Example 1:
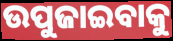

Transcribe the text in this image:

ଉପୁଜାଇବାକୁ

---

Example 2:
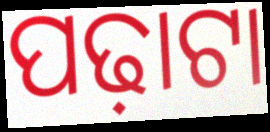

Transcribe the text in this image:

ପଢ଼ାଟା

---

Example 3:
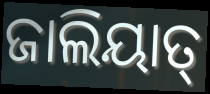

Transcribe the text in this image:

ଜାଲିୟାତ୍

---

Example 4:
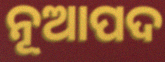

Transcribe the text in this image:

ନୂଆପଦ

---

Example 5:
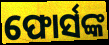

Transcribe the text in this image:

ଫୋର୍ସଙ୍କ